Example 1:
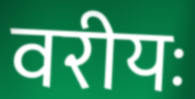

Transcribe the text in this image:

वरीयः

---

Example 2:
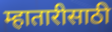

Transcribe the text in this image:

म्हातारीसाठी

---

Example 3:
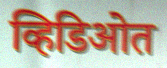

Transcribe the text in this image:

व्हिडिओत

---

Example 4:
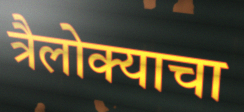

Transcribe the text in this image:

त्रैलोक्याचा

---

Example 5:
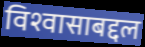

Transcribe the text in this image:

विश्वासाबद्दल